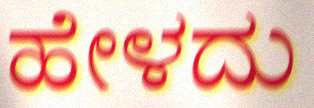
ಹೇಳದು